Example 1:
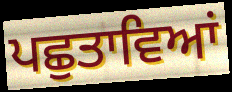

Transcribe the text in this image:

ਪਛੁਤਾਵਿਆਂ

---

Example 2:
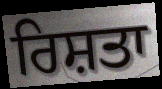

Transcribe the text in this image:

ਰਿਸ਼ਤਾ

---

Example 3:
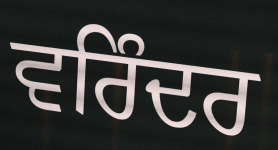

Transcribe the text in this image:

ਵਰਿੰਦਰ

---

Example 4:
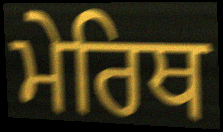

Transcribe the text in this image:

ਮੇਰਿਥ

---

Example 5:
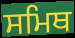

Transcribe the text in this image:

ਸਮਿਥ